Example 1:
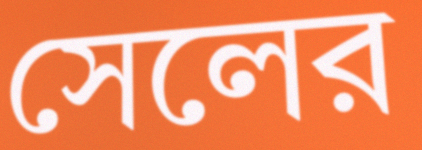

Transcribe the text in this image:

সেলের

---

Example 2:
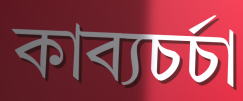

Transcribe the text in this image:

কাব্যচর্চা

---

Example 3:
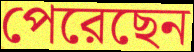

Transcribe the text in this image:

পেরেছেন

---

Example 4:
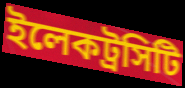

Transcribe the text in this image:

ইলেকট্রসিটি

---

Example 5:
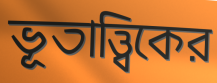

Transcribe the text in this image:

ভূতাত্ত্বিকের